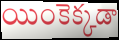
యింకెక్కడా